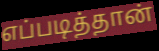
எப்படித்தான்